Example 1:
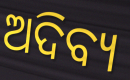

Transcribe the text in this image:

ଅଦିବ୍ୟ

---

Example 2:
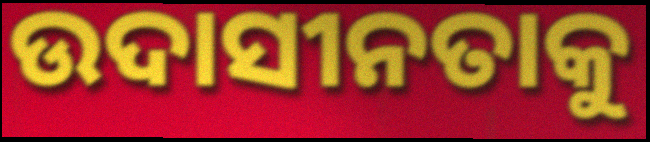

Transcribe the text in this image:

ଉଦାସୀନତାକୁ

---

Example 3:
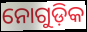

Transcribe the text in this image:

ନୋଗୁଡ଼ିକ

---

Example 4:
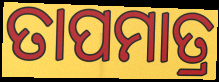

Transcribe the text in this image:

ତାପମାତ୍ର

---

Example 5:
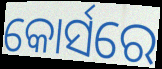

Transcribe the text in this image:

କୋର୍ସରେ